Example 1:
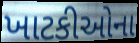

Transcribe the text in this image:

ખાટકીઓના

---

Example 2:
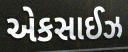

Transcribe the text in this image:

એકસાઈઝ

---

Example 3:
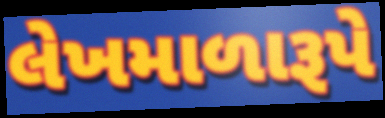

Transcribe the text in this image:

લેખમાળારૂપે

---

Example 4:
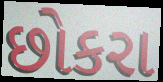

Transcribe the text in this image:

છોકરા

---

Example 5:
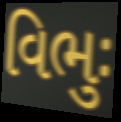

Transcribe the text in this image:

વિભુઃ